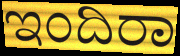
ಇಂದಿರಾ